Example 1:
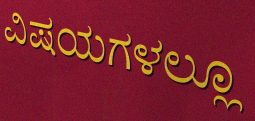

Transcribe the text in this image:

ವಿಷಯಗಳಲ್ಲೂ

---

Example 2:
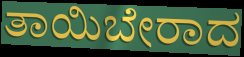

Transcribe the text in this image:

ತಾಯಿಬೇರಾದ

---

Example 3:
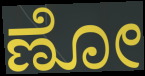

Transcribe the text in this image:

ಣೋ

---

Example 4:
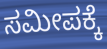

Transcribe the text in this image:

ಸಮೀಪಕ್ಕೆ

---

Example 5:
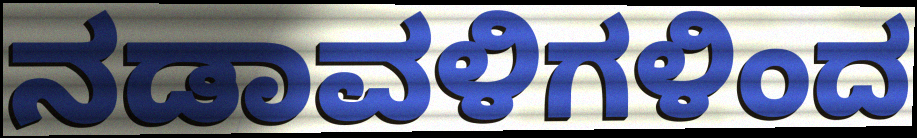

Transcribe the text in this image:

ನಡಾವಳಿಗಳಿಂದ